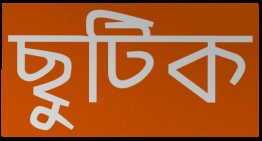
ছুট্কি